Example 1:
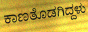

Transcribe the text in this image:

ಕಾಣತೊಡಗಿದ್ದಳು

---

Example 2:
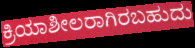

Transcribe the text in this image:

ಕ್ರಿಯಾಶೀಲರಾಗಿರಬಹುದು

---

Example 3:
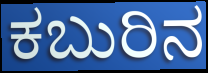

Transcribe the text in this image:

ಕಬುರಿನ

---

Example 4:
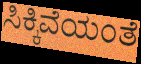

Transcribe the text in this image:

ಸಿಕ್ಕಿವೆಯಂತೆ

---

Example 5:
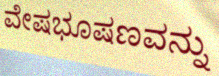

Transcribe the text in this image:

ವೇಷಭೂಷಣವನ್ನು